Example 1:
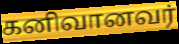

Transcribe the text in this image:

கனிவானவர்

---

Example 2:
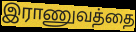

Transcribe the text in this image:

இராணுவத்தை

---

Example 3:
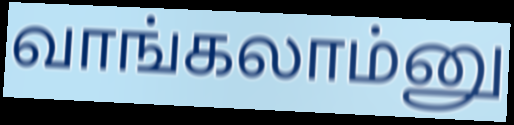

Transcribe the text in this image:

வாங்கலாம்னு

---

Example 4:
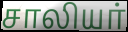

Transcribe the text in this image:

சாலியர்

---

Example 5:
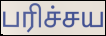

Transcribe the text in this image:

பரிச்சய